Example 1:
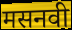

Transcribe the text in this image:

मसनवी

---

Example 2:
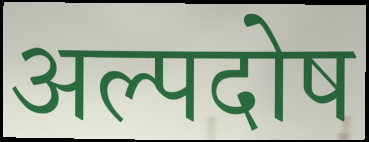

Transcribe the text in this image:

अल्पदोष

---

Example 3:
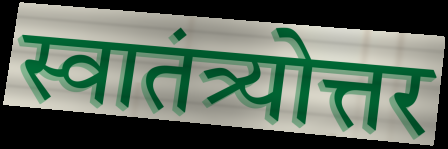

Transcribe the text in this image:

स्वातंत्र्योत्तर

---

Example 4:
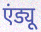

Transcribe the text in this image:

एंड्यू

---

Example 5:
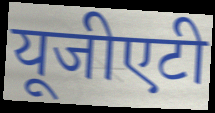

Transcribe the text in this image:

यूजीएटी